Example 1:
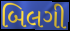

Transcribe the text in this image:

બિલગી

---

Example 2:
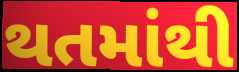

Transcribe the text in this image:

થતમાંથી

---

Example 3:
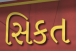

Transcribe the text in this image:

સિકત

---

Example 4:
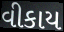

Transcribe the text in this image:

વીકાય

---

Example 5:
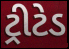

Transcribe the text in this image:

ટ્રીટેડ